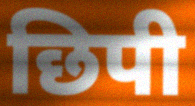
छिपी